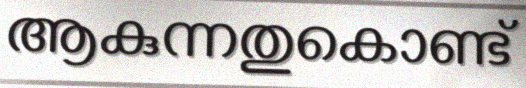
ആകുന്നതുകൊണ്ട്